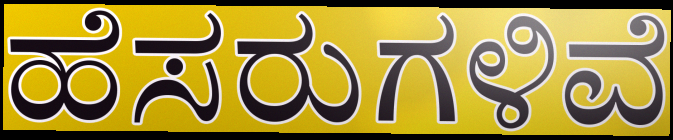
ಹೆಸರುಗಳಿವೆ